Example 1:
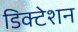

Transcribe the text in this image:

डिक्टेशन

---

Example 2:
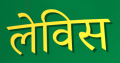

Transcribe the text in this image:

लेविस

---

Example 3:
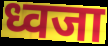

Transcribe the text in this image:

ध्वजा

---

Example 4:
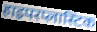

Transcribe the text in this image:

हाइपरप्लास्टिक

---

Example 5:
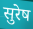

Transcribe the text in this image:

सुरेष